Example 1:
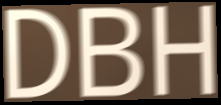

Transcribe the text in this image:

DBH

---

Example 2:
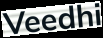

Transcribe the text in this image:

Veedhi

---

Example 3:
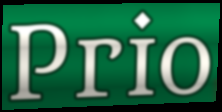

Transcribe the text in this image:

Prio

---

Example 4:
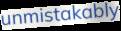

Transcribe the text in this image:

unmistakably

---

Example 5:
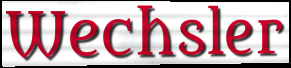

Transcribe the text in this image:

Wechsler